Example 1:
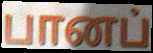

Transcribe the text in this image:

பானப்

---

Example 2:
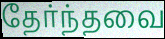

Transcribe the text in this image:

தேர்ந்தவை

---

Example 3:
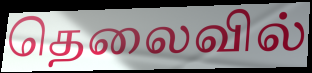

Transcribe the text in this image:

தெலைவில்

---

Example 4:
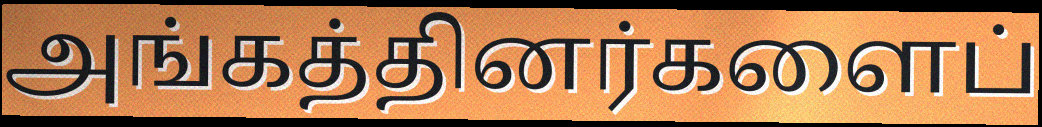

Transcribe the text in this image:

அங்கத்தினர்களைப்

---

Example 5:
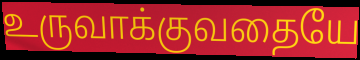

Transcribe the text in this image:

உருவாக்குவதையே